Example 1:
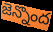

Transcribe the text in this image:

జెన్నొంద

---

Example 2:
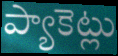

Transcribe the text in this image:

ప్యాకెట్లు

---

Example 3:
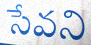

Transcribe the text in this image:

సేవని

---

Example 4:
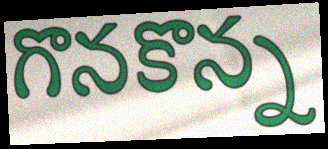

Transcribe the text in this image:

గొనకొన్న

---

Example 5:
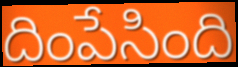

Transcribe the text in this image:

దింపేసింది